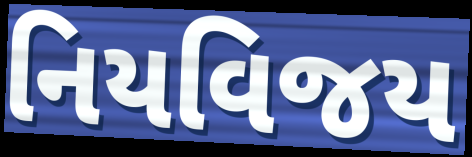
નિયવિજય